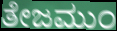
ತೇಜಮುಂ